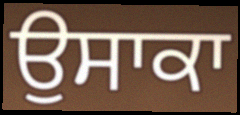
ਉਸਾਕਾ